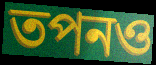
তপনও